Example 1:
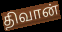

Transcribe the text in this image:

திவான்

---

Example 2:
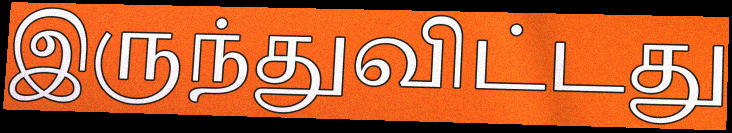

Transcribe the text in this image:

இருந்துவிட்டது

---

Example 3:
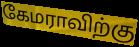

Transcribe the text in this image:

கேமராவிற்கு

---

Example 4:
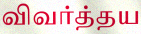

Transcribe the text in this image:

விவர்த்தய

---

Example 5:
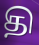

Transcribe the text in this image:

தி